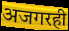
अजगरही